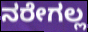
ನರೇಗಲ್ಲ